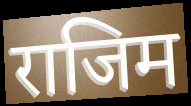
राजिम